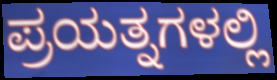
ಪ್ರಯತ್ನಗಳಲ್ಲಿ